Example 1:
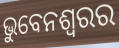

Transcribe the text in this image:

ଭୁବେନଶ୍ବରର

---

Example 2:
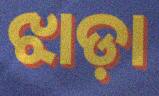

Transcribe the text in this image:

ଝାଡ଼ା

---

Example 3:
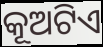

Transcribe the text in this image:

କୂଅଟିଏ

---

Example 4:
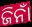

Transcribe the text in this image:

ଜିନାଁ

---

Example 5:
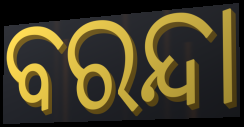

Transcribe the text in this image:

ବରନ୍ଦା